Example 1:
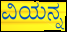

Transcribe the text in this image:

ವಿಯನ್ನ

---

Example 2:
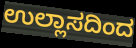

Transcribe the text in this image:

ಉಲ್ಲಾಸದಿಂದ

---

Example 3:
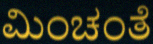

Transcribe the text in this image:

ಮಿಂಚಂತೆ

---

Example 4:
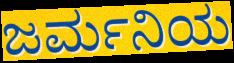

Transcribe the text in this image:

ಜರ್ಮನಿಯ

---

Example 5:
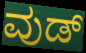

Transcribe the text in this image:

ವುಡ್